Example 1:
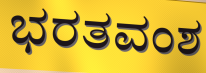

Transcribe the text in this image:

ಭರತವಂಶ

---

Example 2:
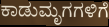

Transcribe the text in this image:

ಕಾಡುಮೃಗಗಳಿಗೆ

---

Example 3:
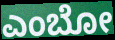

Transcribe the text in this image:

ಎಂಬೋ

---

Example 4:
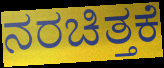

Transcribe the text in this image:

ನರಚಿತ್ತಕೆ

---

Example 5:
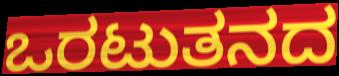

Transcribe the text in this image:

ಒರಟುತನದ